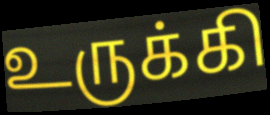
உருக்கி